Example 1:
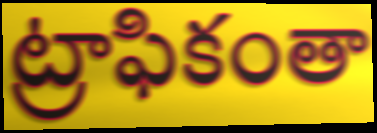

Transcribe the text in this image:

ట్రాఫికంతా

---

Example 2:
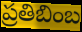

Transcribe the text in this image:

ప్రతిబింబ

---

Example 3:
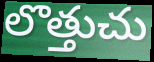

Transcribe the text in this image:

లొత్తుచు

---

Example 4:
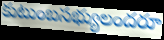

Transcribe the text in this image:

కుటుంబసభ్యులందరూ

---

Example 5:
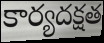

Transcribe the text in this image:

కార్యదక్షత